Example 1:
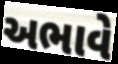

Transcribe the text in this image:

અભાવે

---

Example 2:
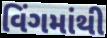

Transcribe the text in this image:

વિંગમાંથી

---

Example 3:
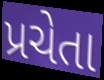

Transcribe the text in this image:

પ્રચેતા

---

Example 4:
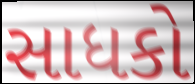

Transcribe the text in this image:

સાધકો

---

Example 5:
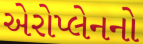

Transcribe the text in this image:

એરોપ્લેનનો